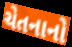
ચેતનાનો